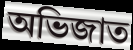
অভিজাত